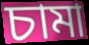
চামা